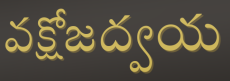
వక్షోజద్వయ